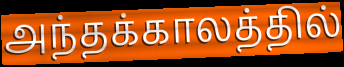
அந்தக்காலத்தில்